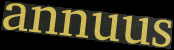
annuus